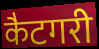
कैटगरी